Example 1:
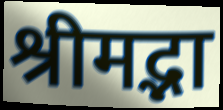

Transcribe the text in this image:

श्रीमद्भा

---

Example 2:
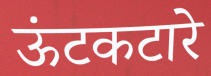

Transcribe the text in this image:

ऊंटकटारे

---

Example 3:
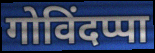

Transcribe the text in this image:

गोविंदप्पा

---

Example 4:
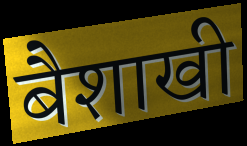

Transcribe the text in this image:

बैशाखी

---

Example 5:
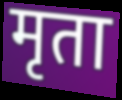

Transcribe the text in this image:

मृता